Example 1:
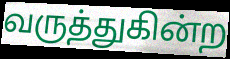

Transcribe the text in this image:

வருத்துகின்ற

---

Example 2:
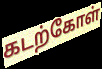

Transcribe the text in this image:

கடற்கோள்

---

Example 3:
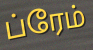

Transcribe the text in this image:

ப்ரேம்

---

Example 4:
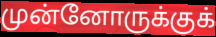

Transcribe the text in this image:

முன்னோருக்குக்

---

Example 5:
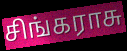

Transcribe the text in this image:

சிங்கராசு